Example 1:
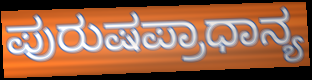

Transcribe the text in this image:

ಪುರುಷಪ್ರಾಧಾನ್ಯ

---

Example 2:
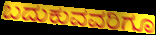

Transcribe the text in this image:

ಬದುಕುವವರಿಗೂ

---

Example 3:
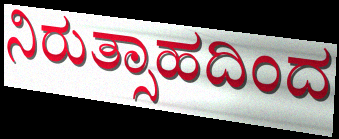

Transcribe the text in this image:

ನಿರುತ್ಸಾಹದಿಂದ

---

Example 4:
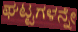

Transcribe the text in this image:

ಘಟ್ಟಗಳನ್ನೇ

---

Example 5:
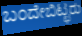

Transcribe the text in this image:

ಬಂದೇಬಿಟ್ಟರು